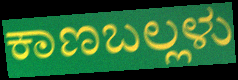
ಕಾಣಬಲ್ಲಳು